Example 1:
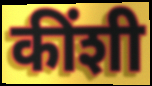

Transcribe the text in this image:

कींशी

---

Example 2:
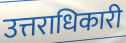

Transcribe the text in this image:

उत्तराधिकारी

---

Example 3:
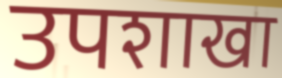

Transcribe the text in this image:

उपशाखा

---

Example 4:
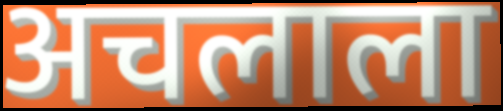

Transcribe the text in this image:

अचलाला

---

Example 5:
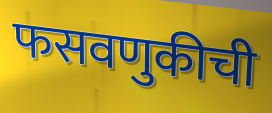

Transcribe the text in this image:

फसवणुकीची